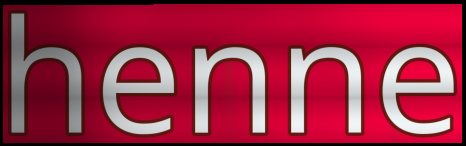
henne